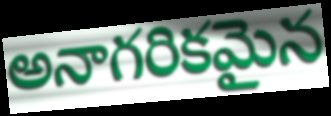
అనాగరికమైన